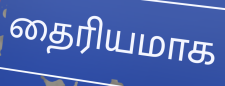
தைரியமாக